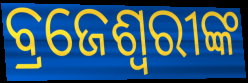
ବ୍ରଜେଶ୍ୱରୀଙ୍କ